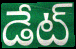
డేట్